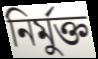
নির্মুক্ত